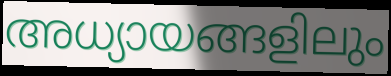
അധ്യായങ്ങളിലും